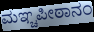
ಮಞ್ಚಪೀಠಾನಂ